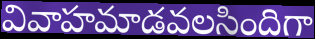
వివాహమాడవలసిందిగా